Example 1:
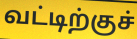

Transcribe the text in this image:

வட்டிற்குச்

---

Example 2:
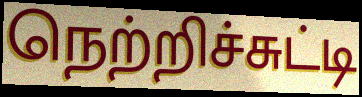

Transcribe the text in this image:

நெற்றிச்சுட்டி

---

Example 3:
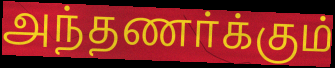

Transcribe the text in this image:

அந்தணர்க்கும்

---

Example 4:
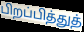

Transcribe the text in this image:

பிறப்பித்துத்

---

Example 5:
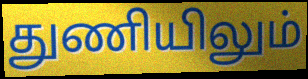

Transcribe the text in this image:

துணியிலும்